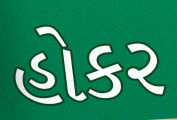
હોકર